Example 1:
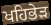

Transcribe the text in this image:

ਖਹਿਭੇੜ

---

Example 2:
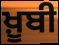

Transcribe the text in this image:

ਖ਼ੂਬੀ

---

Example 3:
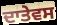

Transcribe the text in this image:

ਦਾਤੇਵਸ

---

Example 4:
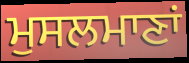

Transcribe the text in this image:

ਮੁਸਲਮਾਣਾਂ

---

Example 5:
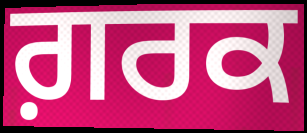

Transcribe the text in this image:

ਗ਼ਰਕ